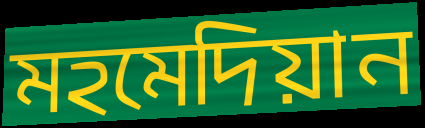
মহমেদিয়ান